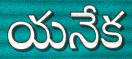
యనేక